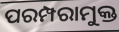
ପରମ୍ପରାମୁକ୍ତ